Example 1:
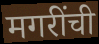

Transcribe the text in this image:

मगरींची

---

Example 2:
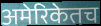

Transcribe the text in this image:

अमेरिकेतच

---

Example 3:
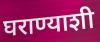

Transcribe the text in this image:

घराण्याशी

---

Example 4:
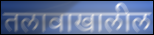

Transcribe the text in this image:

तलावाखालील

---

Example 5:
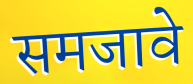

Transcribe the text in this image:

समजावे